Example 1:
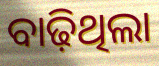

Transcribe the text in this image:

ବାଢ଼ିଥିଲା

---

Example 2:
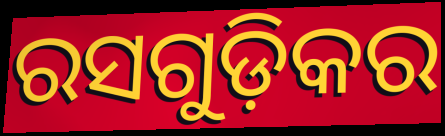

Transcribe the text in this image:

ରସଗୁଡ଼ିକର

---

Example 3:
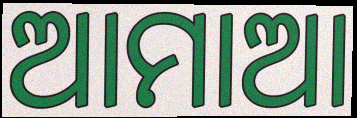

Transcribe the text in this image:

ଆମାଆ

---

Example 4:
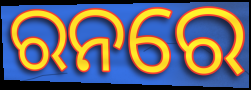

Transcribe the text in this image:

ରନରେ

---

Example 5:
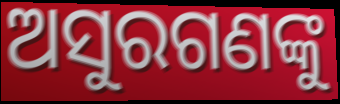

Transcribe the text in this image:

ଅସୁରଗଣଙ୍କୁ